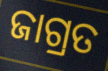
ଜାଗ୍ରତ